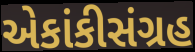
એકાંકીસંગ્રહ